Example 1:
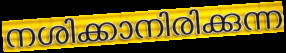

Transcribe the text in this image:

നശിക്കാനിരിക്കുന്ന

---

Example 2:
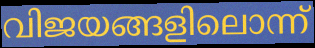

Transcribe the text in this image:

വിജയങ്ങളിലൊന്ന്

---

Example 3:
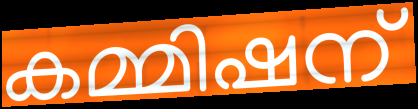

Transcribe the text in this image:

കമ്മിഷന്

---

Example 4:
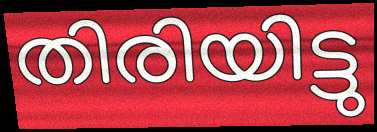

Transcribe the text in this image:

തിരിയിട്ടു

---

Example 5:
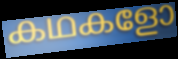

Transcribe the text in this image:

കഥകളോ